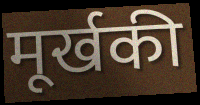
मूर्खकी